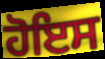
ਹੋਇਸ